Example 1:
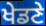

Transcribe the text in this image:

ਖੇਡਣੇ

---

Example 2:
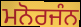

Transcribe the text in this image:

ਮਨੋਰਜੰਨ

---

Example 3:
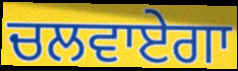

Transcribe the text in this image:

ਚਲਵਾਏਗਾ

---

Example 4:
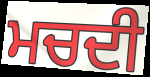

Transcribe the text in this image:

ਮਚਦੀ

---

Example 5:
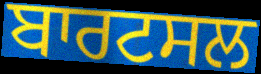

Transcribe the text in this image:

ਬਾਰਟਸਲ